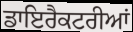
ਡਾਇਰੈਕਟਰੀਆਂ